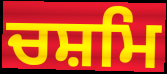
ਚਸ਼ਮਿ